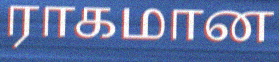
ராகமான